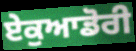
ਏਕੁਆਡੋਰੀ